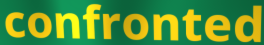
confronted